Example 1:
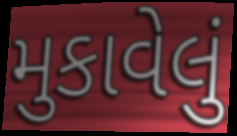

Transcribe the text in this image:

મુકાવેલું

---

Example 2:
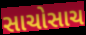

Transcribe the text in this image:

સાચોસાચ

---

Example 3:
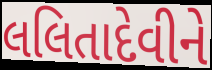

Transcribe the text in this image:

લલિતાદેવીને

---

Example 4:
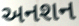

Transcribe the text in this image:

અનશન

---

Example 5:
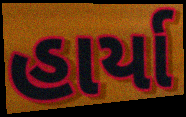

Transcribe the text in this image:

હાર્યા